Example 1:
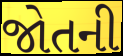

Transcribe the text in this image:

જોતની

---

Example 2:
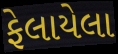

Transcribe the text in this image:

ફેલાયેલા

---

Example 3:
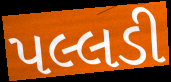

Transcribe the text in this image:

પલ્લડી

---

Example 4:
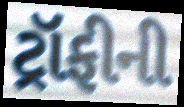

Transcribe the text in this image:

ટ્રૉફીની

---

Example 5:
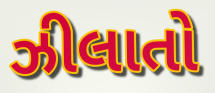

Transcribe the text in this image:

ઝીલાતો